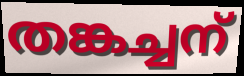
തങ്കച്ചന്